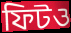
ফিটও